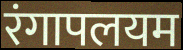
रंगापलयम